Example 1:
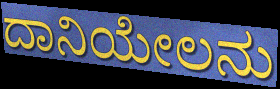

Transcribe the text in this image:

ದಾನಿಯೇಲನು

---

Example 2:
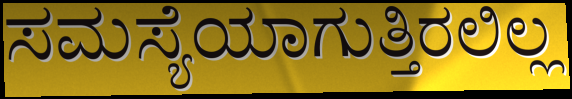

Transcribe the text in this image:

ಸಮಸ್ಯೆಯಾಗುತ್ತಿರಲಿಲ್ಲ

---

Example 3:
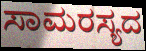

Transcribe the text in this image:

ಸಾಮರಸ್ಯದ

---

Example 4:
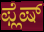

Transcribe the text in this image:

ಫ್ಲೆಷ್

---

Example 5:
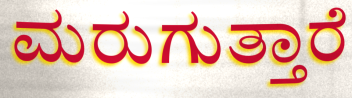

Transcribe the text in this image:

ಮರುಗುತ್ತಾರೆ